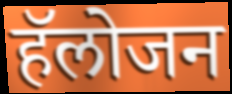
हॅलोजन